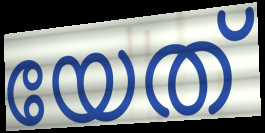
യേത്